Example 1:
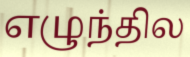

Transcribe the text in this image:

எழுந்தில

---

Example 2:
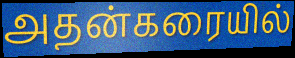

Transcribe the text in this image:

அதன்கரையில்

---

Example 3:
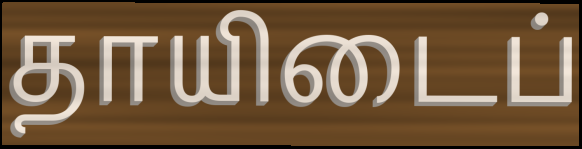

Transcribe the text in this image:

தாயிடைப்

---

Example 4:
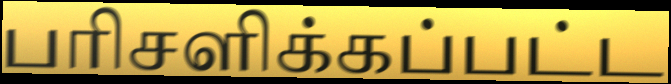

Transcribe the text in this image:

பரிசளிக்கப்பட்ட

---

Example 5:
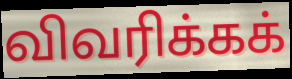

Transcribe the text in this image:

விவரிக்கக்